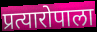
प्रत्यारोपाला